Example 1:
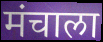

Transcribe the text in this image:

मंचाला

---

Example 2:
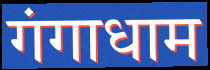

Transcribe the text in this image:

गंगाधाम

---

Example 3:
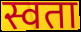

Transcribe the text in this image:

स्वता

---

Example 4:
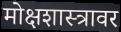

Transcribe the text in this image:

मोक्षशास्त्रावर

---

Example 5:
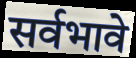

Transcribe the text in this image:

सर्वभावे